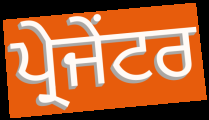
ਪ੍ਰੇਜੇਂਟਰ